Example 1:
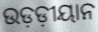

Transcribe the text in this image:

ଉଡ଼ଡ଼ୀୟାନ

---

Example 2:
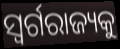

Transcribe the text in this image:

ସ୍ଵର୍ଗରାଜ୍ୟକୁ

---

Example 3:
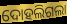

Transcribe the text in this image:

ଦୋହଲିଗଲା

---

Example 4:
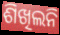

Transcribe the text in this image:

ଶିଖିଲନି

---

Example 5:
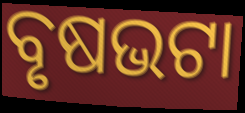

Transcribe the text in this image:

ବୃଷଭଟା